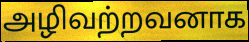
அழிவற்றவனாக